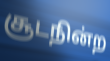
சூடநின்ற